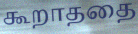
கூறாததை